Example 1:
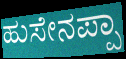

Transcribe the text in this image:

ಹುಸೇನಪ್ಪಾ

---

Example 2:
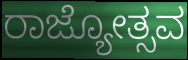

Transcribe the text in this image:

ರಾಜ್ಯೋತ್ಸವ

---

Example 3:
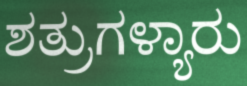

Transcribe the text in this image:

ಶತ್ರುಗಳ್ಯಾರು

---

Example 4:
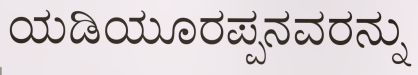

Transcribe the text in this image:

ಯಡಿಯೂರಪ್ಪನವರನ್ನು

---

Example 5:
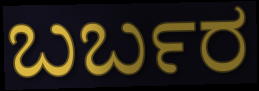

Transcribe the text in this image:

ಬರ್ಬರ